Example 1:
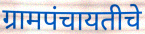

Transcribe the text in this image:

ग्रामपंचायतीचे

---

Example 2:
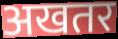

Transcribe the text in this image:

अखतर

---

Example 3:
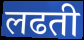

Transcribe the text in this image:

लढती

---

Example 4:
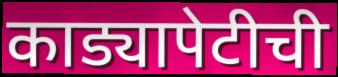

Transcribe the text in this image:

काड्यापेटीची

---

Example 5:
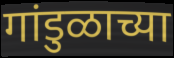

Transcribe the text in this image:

गांडुळाच्या